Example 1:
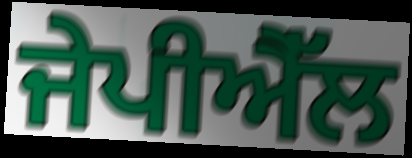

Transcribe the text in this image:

ਜੇਪੀਐੱਲ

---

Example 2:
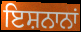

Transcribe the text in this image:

ਇਸ਼ਨਾਨਾਂ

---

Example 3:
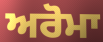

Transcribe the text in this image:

ਅਰੋਮਾ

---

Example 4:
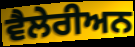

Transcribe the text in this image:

ਵੈਲੇਰੀਅਨ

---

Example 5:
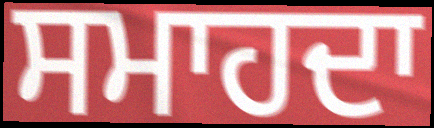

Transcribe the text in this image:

ਸਮਾਹਦਾ